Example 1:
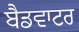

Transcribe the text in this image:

ਬੈਡਵਾਟਰ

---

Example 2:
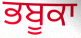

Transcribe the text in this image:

ਭਬੂਕਾ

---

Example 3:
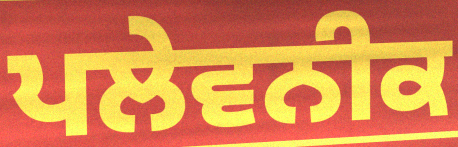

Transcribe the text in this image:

ਪਲੇਵਨੀਕ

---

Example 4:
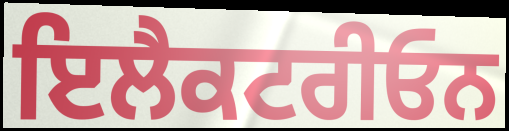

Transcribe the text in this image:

ਇਲੈਕਟਰੀਓਨ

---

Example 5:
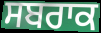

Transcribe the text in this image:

ਸਬਰਾਕ